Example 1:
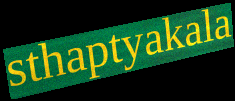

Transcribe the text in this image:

sthaptyakala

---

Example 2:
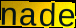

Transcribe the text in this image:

nade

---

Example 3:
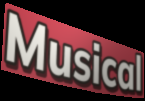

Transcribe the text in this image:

Musical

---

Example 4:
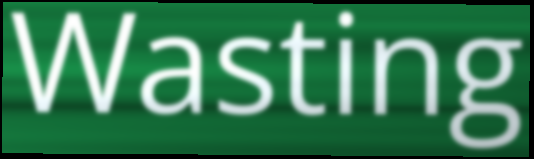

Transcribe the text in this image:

Wasting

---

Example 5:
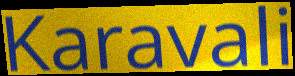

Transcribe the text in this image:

Karavali